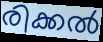
രിക്കൽ